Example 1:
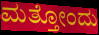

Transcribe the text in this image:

ಮತ್ತೋಂದು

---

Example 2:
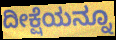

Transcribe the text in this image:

ದೀಕ್ಷೆಯನ್ನೂ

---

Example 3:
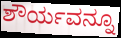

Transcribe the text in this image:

ಶೌರ್ಯವನ್ನೂ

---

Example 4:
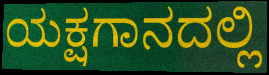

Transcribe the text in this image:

ಯಕ್ಷಗಾನದಲ್ಲಿ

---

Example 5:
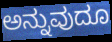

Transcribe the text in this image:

ಅನ್ನುವುದೂ